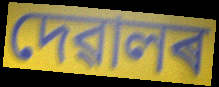
দেৱালৰ